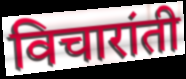
विचारांती